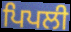
ਪਿਪਲੀ